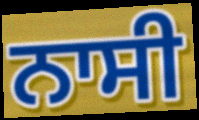
ਨਾਸੀ